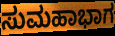
ಸುಮಹಾಭಾಗ